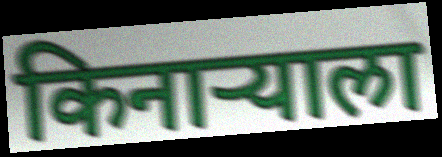
किनाऱ्याला